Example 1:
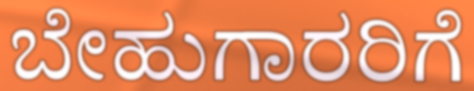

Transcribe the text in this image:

ಬೇಹುಗಾರರಿಗೆ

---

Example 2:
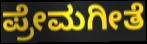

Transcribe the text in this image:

ಪ್ರೇಮಗೀತೆ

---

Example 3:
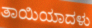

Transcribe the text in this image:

ತಾಯಿಯಾದಳು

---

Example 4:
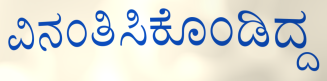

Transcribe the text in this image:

ವಿನಂತಿಸಿಕೊಂಡಿದ್ದ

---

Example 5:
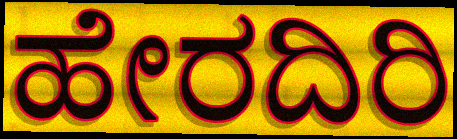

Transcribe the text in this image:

ಹೇರದಿರಿ